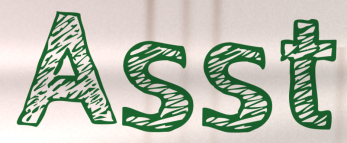
Asst